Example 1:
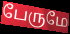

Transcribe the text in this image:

பேருமே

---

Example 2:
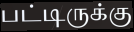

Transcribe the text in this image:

பட்டிருக்கு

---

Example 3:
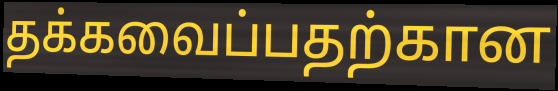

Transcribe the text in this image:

தக்கவைப்பதற்கான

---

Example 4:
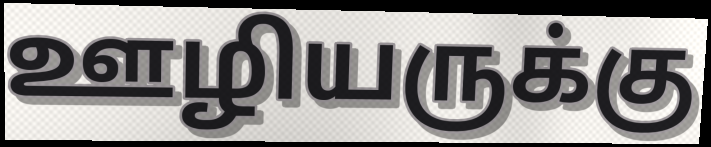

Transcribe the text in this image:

ஊழியருக்கு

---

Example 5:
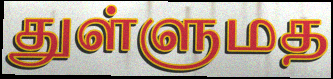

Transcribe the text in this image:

துள்ளுமத